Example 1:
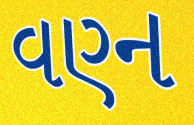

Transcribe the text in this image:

વણ્ન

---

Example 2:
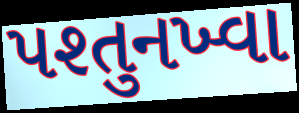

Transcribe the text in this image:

પશ્તુનખ્વા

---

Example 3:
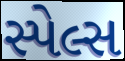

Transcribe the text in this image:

સ્પેલ્સ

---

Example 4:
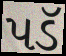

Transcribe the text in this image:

પડૅ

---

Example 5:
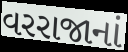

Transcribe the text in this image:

વરરાજાનાં